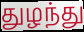
துழந்து